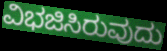
ವಿಭಜಿಸಿರುವುದು